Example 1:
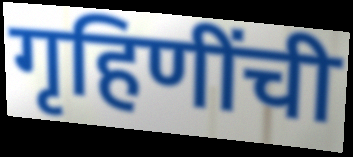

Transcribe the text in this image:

गृहिणींची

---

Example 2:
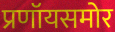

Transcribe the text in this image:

प्रणॉयसमोर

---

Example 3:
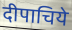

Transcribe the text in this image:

दीपाचिये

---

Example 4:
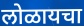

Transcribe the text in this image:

लोळायचा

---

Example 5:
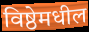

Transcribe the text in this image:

विष्ठेमधील